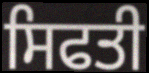
ਸਿਫਤੀ